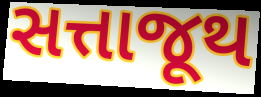
સત્તાજૂથ